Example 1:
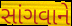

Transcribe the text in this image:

સાંગવાને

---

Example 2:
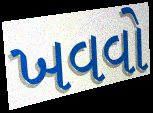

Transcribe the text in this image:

ખવવો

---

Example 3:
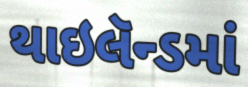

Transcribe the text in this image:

થાઇલૅન્ડમાં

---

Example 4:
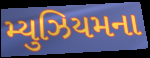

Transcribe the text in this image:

મ્યુઝિયમના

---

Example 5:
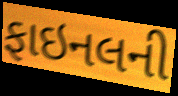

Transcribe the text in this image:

ફાઇનલની